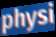
physi